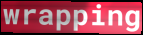
wrapping